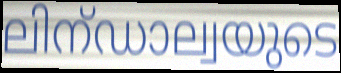
ലിന്ഡാല്വയുടെ